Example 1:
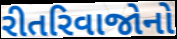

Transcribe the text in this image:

રીતરિવાજોનો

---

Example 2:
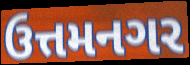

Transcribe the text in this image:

ઉત્તમનગર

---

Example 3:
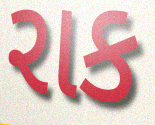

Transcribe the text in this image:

રાક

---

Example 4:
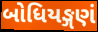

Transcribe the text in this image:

બોધિયઙ્ગણં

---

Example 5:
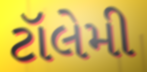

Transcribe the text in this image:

ટૉલેમી